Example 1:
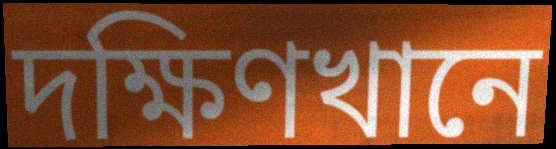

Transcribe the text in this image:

দক্ষিণখানে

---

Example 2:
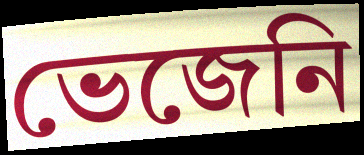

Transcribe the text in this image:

ভেজেনি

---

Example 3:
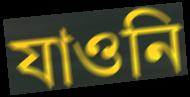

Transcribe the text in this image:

যাওনি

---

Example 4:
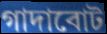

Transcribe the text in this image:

গাদাবোট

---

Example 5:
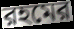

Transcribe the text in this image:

রহমের